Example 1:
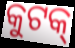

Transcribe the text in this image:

କୁଟକ୍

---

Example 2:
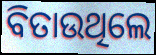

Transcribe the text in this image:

ବିତାଉଥିଲେ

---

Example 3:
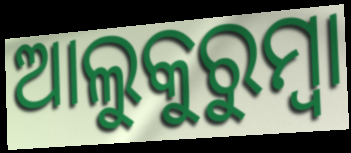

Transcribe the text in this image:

ଆଲୁକୁରୁମ୍ବା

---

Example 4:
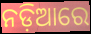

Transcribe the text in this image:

ନଡ଼ିଆରେ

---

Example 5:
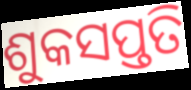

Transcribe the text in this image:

ଶୁକସପ୍ତତି